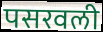
पसरवली